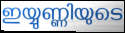
ഇയ്യുണ്ണിയുടെ